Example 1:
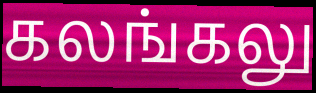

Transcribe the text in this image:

கலங்கலு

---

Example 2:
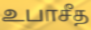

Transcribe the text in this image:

உபாசீத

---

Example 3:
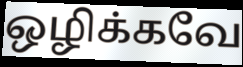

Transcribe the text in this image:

ஒழிக்கவே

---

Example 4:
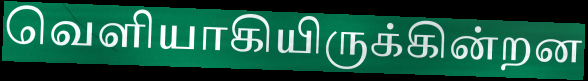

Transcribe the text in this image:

வெளியாகியிருக்கின்றன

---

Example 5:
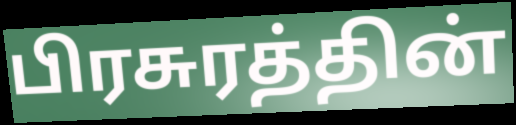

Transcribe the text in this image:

பிரசுரத்தின்